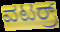
ವಟರ್ರ್